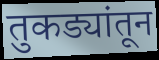
तुकड्यांतून